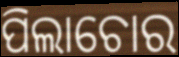
ପିଲାଚୋର